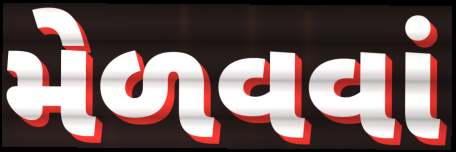
મેળવવાં